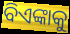
ବିଏଙ୍କାକୁ